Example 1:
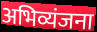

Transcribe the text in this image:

अभिव्यंजना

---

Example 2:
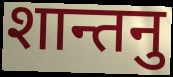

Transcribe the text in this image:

शान्तनु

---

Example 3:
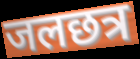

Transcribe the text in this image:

जलछत्र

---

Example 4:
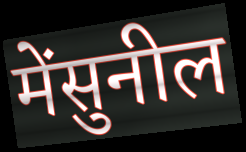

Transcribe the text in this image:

मेंसुनील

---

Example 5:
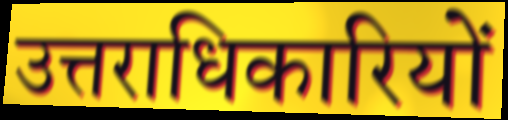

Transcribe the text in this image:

उत्तराधिकारियों